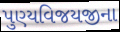
પુણ્યવિજયજીના